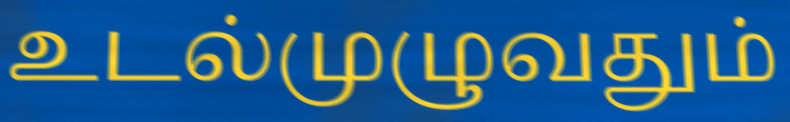
உடல்முழுவதும்